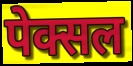
पेक्सल